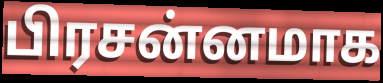
பிரசன்னமாக